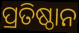
ପ୍ରତିଷ୍ଠାନ